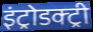
इंट्रोडक्ट्री